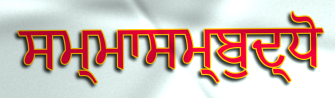
ਸਮ੍ਮਾਸਮ੍ਬੁਦ੍ਧੋ